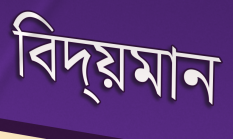
বিদ্য়মান